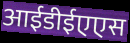
आईडीईएएस